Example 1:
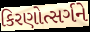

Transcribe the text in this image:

કિરણોત્સર્ગને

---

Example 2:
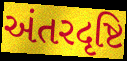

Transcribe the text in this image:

અંતરદૃષ્ટિ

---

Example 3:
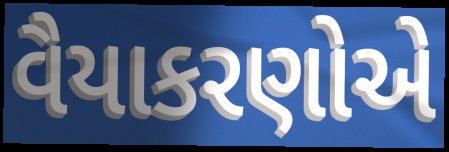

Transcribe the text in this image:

વૈયાકરણોએ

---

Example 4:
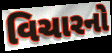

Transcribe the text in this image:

વિચારનો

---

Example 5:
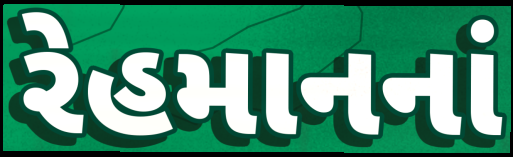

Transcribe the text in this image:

રેહમાનનાં